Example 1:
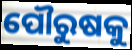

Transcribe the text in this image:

ପୌରୁଷକୁ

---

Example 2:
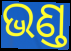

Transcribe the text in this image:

ଭଣ୍ଡ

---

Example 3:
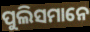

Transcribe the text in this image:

ପୁଲିସମାନେ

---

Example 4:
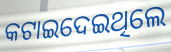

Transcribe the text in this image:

କଟାଇଦେଇଥିଲେ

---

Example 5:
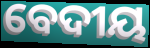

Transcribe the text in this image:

ବେଦୀୟ